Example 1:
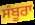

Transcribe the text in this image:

ਸੰਬੂਰਾ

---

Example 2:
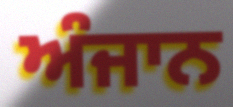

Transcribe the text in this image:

ਅੰਜਾਨ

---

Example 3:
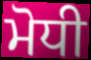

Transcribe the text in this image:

ਮੋਧੀ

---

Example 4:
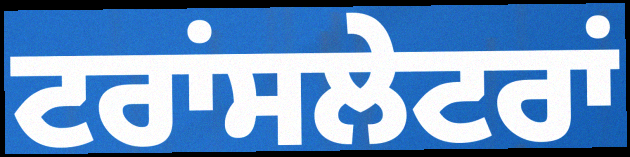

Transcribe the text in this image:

ਟਰਾਂਸਲੇਟਰਾਂ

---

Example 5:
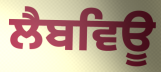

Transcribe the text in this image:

ਲੈਬਵਿਊ